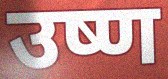
उष्ण